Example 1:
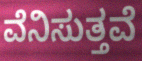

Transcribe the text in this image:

ವೆನಿಸುತ್ತವೆ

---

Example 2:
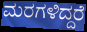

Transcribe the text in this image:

ಮರಗಳಿದ್ದರೆ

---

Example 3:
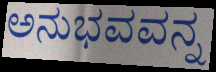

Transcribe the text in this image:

ಅನುಭವವನ್ನ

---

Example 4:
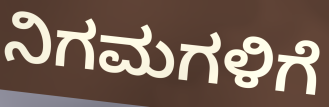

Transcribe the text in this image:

ನಿಗಮಗಳಿಗೆ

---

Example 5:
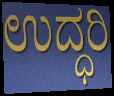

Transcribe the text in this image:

ಉದ್ಧರಿ